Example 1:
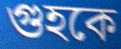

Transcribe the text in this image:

গুহকে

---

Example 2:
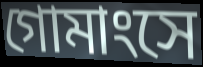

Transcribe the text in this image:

গোমাংসে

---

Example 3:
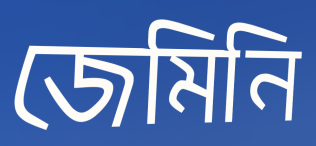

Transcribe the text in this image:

জেমিনি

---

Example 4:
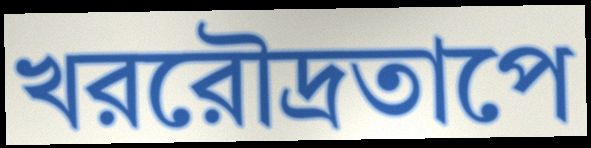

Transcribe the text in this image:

খররৌদ্রতাপে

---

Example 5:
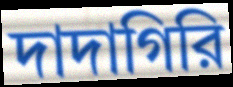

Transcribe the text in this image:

দাদাগিরি